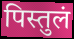
पिस्तुलं